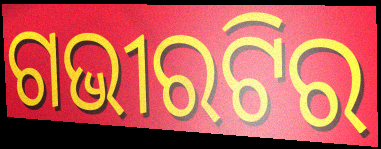
ଗଭୀରଟିର